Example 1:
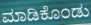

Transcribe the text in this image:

ಮಾಡಿಕೊಂಡು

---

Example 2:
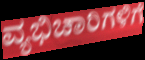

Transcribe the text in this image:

ವ್ಯಭಿಚಾರಿಗಳಿಗೆ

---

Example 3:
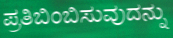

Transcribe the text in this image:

ಪ್ರತಿಬಿಂಬಿಸುವುದನ್ನು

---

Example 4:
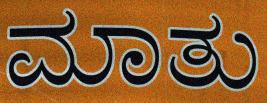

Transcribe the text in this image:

ಮಾತು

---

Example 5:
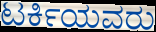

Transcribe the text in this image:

ಟರ್ಕಿಯವರು